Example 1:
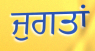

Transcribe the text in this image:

ਜੁਗਤਾਂ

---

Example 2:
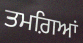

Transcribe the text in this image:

ਤਮਗ਼ਿਆਂ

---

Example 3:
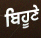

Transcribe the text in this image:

ਬਿਹੂਣੇ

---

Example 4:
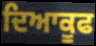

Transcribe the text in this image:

ਦਿਆਕੂਫ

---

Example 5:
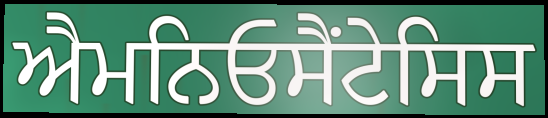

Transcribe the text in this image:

ਐਮਨਿਓਸੈਂਟੇਸਿਸ